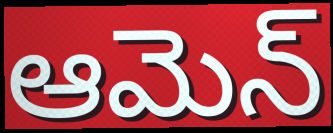
ఆమెన్